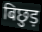
बिछुड़